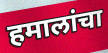
हमालांचा